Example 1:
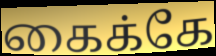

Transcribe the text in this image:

கைக்கே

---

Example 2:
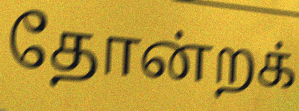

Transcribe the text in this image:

தோன்றக்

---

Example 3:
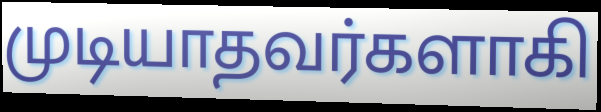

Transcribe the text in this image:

முடியாதவர்களாகி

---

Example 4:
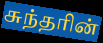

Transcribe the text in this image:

சுந்தரின்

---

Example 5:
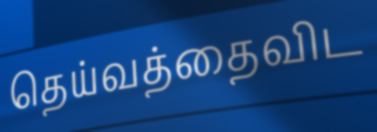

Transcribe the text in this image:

தெய்வத்தைவிட